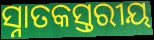
ସ୍ନାତକସ୍ତରୀୟ